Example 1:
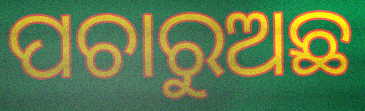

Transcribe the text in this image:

ପଚାରୁଅଛ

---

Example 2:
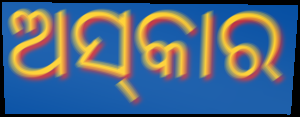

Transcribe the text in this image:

ଅସ୍‌କାର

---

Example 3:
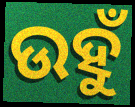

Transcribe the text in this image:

ଉହୁଁ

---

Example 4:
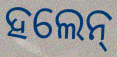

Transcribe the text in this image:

ହଲେନ୍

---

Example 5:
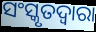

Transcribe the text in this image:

ସଂସ୍କୃତଦ୍ୱାରା